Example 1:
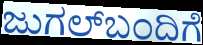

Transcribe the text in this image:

ಜುಗಲ್‌ಬಂದಿಗೆ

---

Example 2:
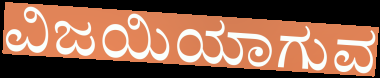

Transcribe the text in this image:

ವಿಜಯಿಯಾಗುವ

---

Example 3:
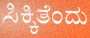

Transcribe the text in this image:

ಸಿಕ್ಕಿತೆಂದು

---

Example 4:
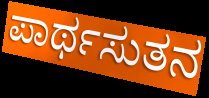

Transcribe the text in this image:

ಪಾರ್ಥಸುತನ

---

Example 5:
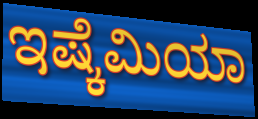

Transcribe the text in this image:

ಇಷ್ಕೆಮಿಯಾ